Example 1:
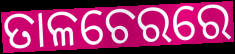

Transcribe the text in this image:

ତାଳଚେରରେ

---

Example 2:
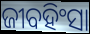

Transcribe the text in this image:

ଜୀବହିଂସା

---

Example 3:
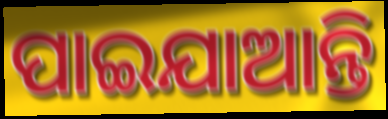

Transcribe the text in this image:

ପାଇଯାଆନ୍ତି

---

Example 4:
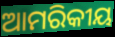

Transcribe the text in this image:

ଆମରିକୀୟ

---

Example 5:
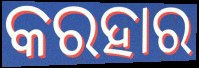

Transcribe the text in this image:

କରହାର